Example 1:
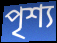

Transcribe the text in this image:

পৃশ্য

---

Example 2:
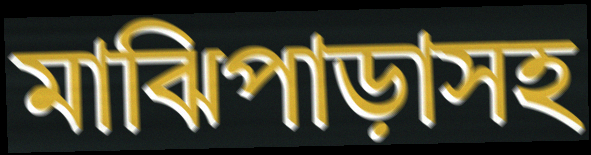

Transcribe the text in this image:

মাঝিপাড়াসহ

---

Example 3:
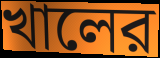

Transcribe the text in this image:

খালের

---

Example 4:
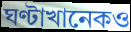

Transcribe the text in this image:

ঘণ্টাখানেকও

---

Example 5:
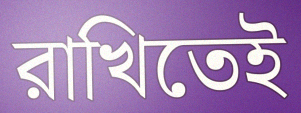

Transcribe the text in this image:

রাখিতেই